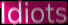
Idiots